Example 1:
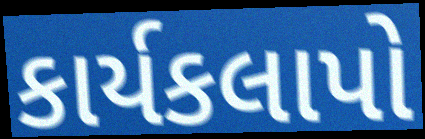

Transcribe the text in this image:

કાર્યકલાપો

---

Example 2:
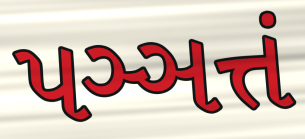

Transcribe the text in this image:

પઞ્ઞત્તં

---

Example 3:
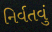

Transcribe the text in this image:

નિર્વતવું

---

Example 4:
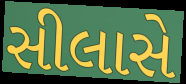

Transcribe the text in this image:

સીલાસે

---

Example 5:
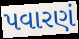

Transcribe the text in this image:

પવારણં